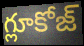
గ్లూకోజ్